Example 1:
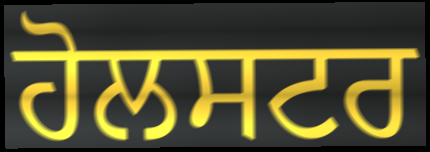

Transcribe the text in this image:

ਹੋਲਸਟਰ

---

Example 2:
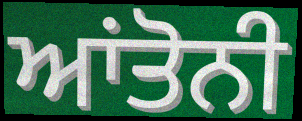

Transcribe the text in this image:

ਆਂਤੋਨੀ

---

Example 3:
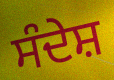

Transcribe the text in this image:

ਸੰਦੇਸ਼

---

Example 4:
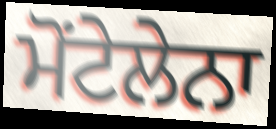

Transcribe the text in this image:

ਮੋਂਟੇਲੇਨਾ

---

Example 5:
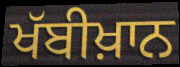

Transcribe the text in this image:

ਖੱਬੀਖ਼ਾਨ